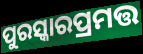
ପୁରସ୍କାରପ୍ରମତ୍ତ